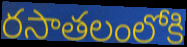
రసాతలంలోకి